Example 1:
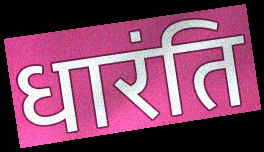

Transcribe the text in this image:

धारंति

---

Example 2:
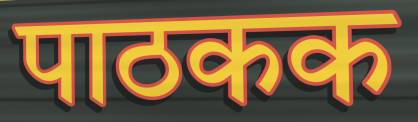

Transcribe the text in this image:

पाठकक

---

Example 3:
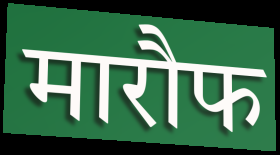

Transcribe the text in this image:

मारौफ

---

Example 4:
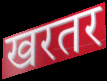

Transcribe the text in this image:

खरतर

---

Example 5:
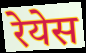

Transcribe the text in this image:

रेयेस